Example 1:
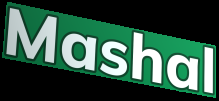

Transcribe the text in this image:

Mashal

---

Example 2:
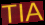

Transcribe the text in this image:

TIA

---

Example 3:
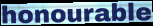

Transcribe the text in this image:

honourable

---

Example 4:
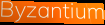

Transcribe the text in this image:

Byzantium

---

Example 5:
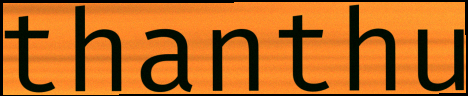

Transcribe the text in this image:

thanthu